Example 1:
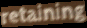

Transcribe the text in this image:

retaining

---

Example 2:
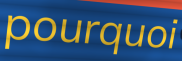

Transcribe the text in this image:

pourquoi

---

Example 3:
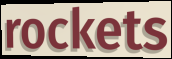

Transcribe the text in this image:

rockets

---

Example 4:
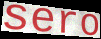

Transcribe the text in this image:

sero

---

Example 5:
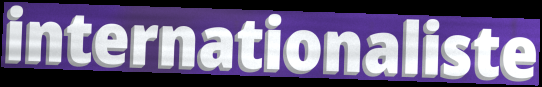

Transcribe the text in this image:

internationaliste